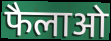
फैलाओ